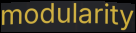
modularity